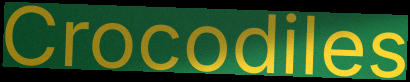
Crocodiles